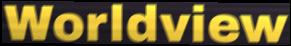
Worldview